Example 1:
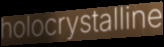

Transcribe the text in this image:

holocrystalline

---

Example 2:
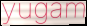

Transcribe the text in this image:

yugam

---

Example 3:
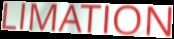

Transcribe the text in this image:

LIMATION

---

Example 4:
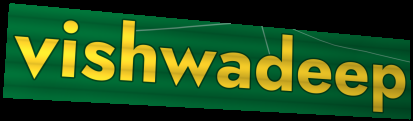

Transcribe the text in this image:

vishwadeep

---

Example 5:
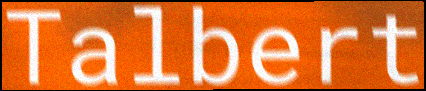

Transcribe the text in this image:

Talbert